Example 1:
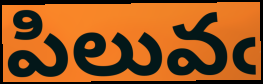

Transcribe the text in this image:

పిలువఁ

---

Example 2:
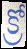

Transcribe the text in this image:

క్రో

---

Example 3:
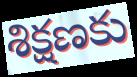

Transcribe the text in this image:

శిక్షణకు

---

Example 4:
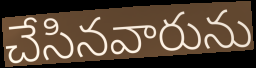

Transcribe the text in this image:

చేసినవారును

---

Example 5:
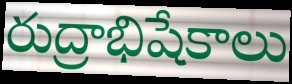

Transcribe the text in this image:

రుద్రాభిషేకాలు